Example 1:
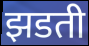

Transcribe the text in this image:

झडती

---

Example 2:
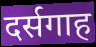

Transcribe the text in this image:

दर्सगाह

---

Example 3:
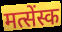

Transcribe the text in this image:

मत्सेंस्क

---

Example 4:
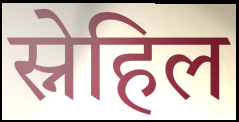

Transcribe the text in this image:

स्नेहिल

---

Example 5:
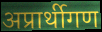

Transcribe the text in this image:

अप्रार्थीगण